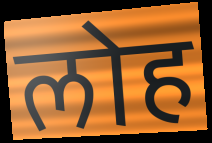
लोह